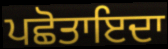
ਪਛੋਤਾਇਦਾ